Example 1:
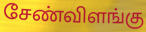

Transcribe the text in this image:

சேண்விளங்கு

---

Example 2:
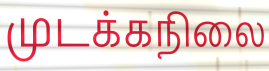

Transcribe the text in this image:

முடக்கநிலை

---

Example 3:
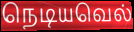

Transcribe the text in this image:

நெடியவெல்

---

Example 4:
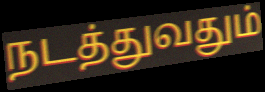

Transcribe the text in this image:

நடத்துவதும்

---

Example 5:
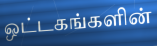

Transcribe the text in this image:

ஒட்டகங்களின்